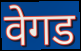
वेगड